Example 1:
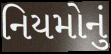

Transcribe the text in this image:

નિયમોનું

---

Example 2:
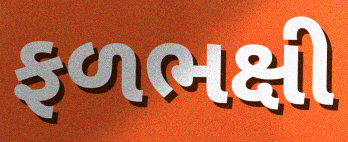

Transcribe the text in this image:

ફળભક્ષી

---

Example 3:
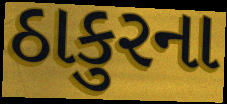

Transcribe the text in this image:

ઠાકુરના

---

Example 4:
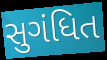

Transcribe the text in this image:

સુગંધિત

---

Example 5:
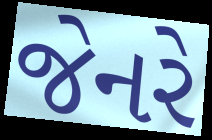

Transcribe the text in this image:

જેનરે